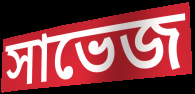
সাভেজ